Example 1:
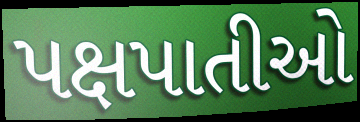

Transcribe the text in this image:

પક્ષપાતીઓ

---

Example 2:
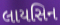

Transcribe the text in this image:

લાયસિન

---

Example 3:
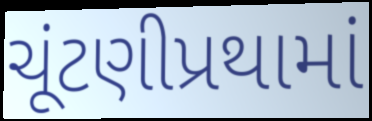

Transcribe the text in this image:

ચૂંટણીપ્રથામાં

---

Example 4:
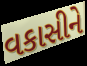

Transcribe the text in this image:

વકાસીને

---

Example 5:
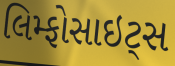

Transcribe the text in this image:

લિમ્ફોસાઇટ્સ